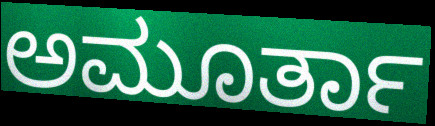
ಅಮೂರ್ತಾ